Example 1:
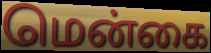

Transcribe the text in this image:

மென்கை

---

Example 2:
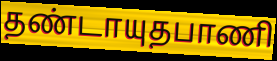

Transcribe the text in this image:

தண்டாயுதபாணி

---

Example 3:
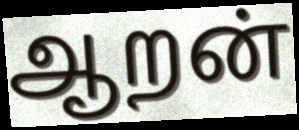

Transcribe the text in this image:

ஆறன்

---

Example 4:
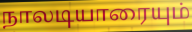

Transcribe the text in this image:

நாலடியாரையும்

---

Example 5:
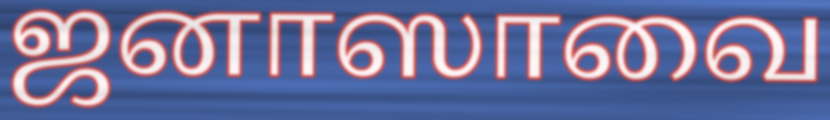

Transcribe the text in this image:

ஜனாஸாவை